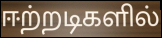
ஈற்றடிகளில்